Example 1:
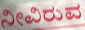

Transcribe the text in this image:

ನೀವಿರುವ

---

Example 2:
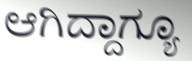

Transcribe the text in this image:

ಆಗಿದ್ದಾಗ್ಯೂ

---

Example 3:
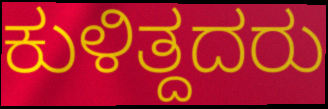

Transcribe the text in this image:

ಕುಳಿತ್ದದರು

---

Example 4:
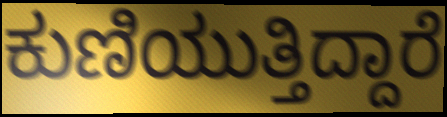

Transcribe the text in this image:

ಕುಣಿಯುತ್ತಿದ್ದಾರೆ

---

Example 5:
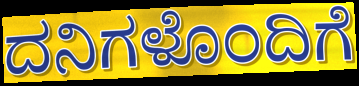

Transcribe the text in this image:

ದನಿಗಳೊಂದಿಗೆ